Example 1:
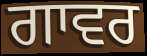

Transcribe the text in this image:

ਗਾਵਰ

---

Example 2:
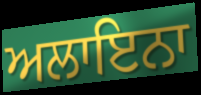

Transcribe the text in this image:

ਅਲਾਇਨਾ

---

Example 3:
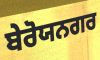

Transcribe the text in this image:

ਬੇਰੋਯਨਗਰ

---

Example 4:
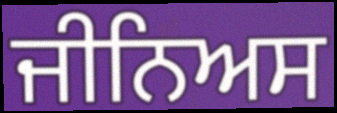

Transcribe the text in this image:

ਜੀਨਿਅਸ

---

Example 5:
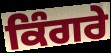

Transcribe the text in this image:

ਕਿੰਗਰੇ